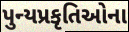
પુન્યપ્રકૃતિઓના